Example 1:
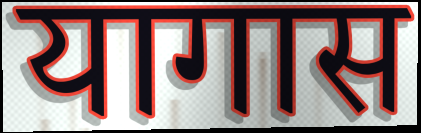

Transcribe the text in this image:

यागास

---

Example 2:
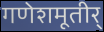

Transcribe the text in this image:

गणेशमूतीर्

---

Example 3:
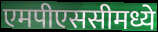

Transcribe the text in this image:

एमपीएससीमध्ये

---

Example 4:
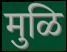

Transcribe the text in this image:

मुळि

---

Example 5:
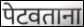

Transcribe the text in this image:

पेटवताना